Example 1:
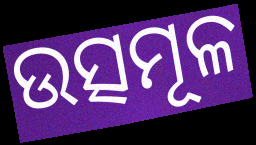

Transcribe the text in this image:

ଉତ୍ସମୂଳ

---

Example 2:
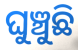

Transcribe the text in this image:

ଘୁଞ୍ଚୁଛି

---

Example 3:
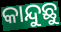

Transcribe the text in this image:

କାନ୍ଦୁଛୁ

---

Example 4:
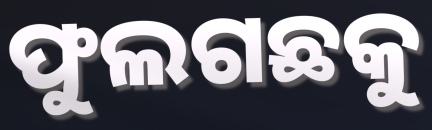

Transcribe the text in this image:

ଫୁଲଗଛକୁ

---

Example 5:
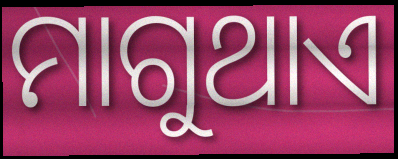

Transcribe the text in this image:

ମାଗୁଥାଏ